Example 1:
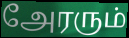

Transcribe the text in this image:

அேரரும்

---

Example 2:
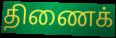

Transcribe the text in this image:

திணைக்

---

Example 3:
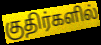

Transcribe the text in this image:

குதிர்களில்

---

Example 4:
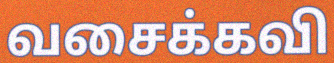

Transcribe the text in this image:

வசைக்கவி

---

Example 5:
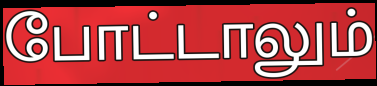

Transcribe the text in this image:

போட்டாலும்